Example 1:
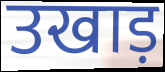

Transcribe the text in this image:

उखाड़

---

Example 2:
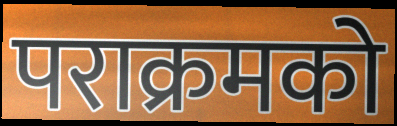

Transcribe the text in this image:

पराक्रमको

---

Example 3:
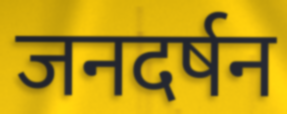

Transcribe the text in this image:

जनदर्षन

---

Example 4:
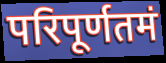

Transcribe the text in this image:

परिपूर्णतमं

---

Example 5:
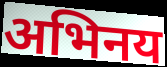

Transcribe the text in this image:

अभिनय